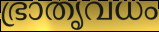
ഭ്രാതൃവധം